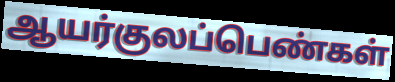
ஆயர்குலப்பெண்கள்